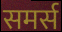
समर्स